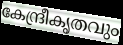
കേന്ദ്രീകൃതവും